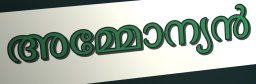
അമ്മോന്യൻ